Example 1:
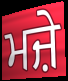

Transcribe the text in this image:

ਮਜ਼ੇ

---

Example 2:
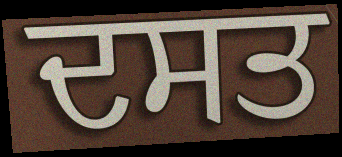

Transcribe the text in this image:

ਦਸਤ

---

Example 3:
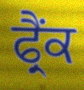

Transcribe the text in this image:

ਫ੍ਰੈਂਕ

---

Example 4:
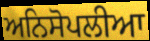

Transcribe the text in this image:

ਅਨਿਸੋਪਲੀਆ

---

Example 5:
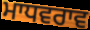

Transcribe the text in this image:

ਮਾਧਵਰਾਵ